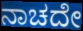
ನಾಚದೇ